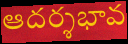
ఆదర్శభావ